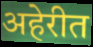
अहेरीत